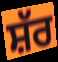
ਸ਼ੱਰ